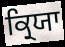
ਕ੍ਰਿਯਾ